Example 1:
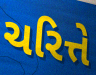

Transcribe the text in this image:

ચરિત્તે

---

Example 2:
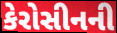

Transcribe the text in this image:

કેરોસીનની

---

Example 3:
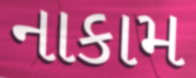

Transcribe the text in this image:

નાકામ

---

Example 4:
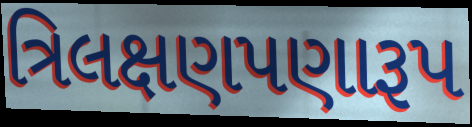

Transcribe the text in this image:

ત્રિલક્ષણપણારૂપ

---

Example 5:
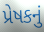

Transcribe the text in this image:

પ્રેષકનું